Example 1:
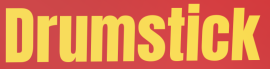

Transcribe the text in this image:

Drumstick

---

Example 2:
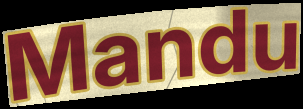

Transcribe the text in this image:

Mandu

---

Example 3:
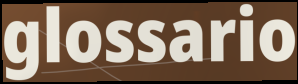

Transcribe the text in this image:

glossario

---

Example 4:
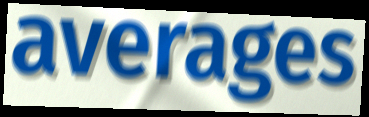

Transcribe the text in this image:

averages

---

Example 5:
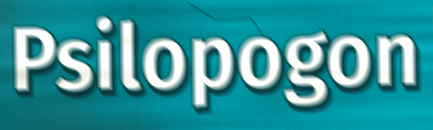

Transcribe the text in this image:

Psilopogon